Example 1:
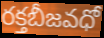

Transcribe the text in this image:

రక్తబీజవధో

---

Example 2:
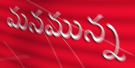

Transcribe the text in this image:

మనమున్న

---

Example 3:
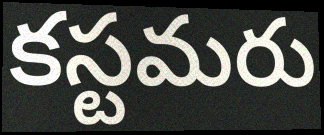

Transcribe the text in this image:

కస్టమరు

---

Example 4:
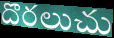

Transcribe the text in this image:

దొరలుచు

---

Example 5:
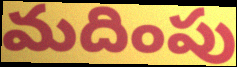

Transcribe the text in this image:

మదింపు